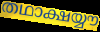
തഥാക്ഷയ്യൗ